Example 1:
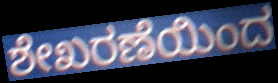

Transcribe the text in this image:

ಶೇಖರಣೆಯಿಂದ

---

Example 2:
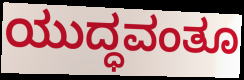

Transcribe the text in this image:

ಯುದ್ಧವಂತೂ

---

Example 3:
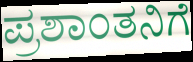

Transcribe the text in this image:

ಪ್ರಶಾಂತನಿಗೆ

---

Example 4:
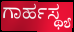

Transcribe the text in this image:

ಗಾರ್ಹಸ್ಥ್ಯ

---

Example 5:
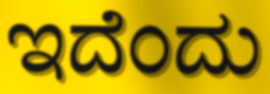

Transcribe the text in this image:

ಇದೆಂದು